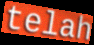
telah